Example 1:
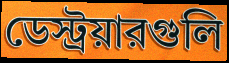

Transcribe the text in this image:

ডেস্ট্রয়ারগুলি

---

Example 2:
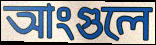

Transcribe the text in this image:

আংগুলে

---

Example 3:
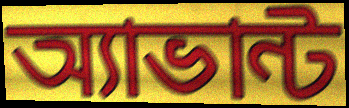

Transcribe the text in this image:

অ্যাভান্ট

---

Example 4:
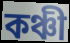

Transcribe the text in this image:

কঞ্চী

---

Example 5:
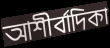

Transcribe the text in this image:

আশীর্বাদিকা